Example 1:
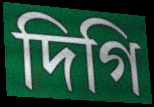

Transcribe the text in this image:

দিগি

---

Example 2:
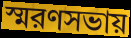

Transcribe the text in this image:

স্মরণসভায়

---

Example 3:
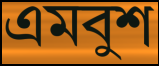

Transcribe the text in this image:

এমবুশ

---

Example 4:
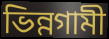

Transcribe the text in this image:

ভিন্নগামী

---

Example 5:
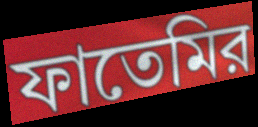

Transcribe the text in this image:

ফাতেমির